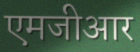
एमजीआर